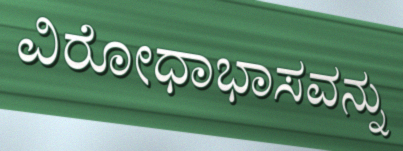
ವಿರೋಧಾಭಾಸವನ್ನು